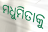
ମଧୁମିତାକୁ